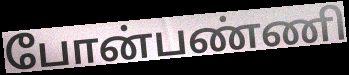
போன்பண்ணி